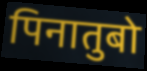
पिनातुबो